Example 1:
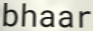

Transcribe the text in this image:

bhaar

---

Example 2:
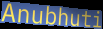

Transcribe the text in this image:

Anubhuti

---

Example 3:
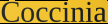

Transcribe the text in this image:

Coccinia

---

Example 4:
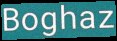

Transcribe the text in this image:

Boghaz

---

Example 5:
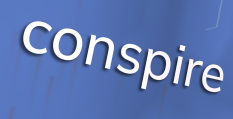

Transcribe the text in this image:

conspire